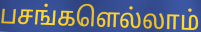
பசங்களெல்லாம்